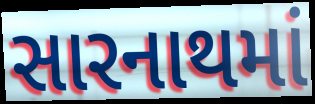
સારનાથમાં